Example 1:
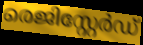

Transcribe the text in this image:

രെജിസ്റ്റേർഡ്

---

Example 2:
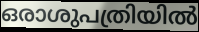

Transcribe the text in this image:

ഒരാശുപത്രിയിൽ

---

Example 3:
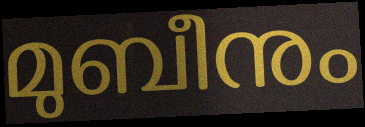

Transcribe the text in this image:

മുബീനും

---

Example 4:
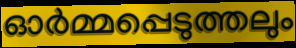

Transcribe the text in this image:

ഓർമ്മപ്പെടുത്തലും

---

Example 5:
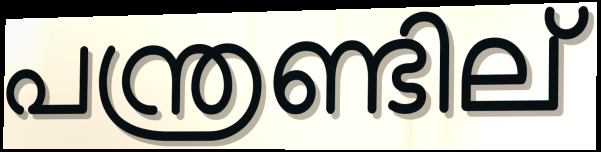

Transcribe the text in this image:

പന്ത്രണ്ടില്